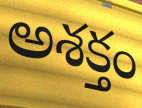
అశక్తం